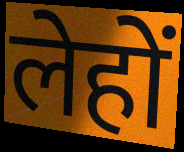
लेहों